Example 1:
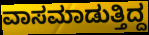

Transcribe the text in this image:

ವಾಸಮಾಡುತ್ತಿದ್ದ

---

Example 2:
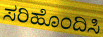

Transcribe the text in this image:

ಸರಿಹೊಂದಿಸಿ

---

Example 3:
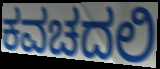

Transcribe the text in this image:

ಕವಚದಲಿ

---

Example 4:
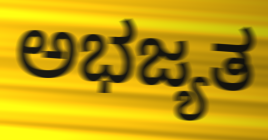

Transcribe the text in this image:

ಅಭಜ್ಯತ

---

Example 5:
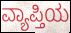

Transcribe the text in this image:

ವ್ಯಾಪ್ತಿಯ